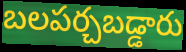
బలపర్చబడ్డారు